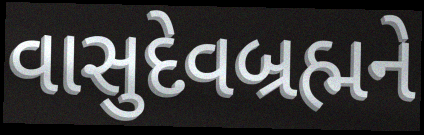
વાસુદેવબ્રહ્મને